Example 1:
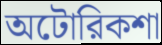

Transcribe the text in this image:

অটোরিকশা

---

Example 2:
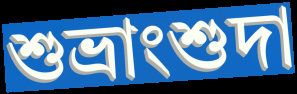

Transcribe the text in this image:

শুভ্রাংশুদা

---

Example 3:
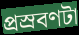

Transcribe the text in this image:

প্রস্রবণটা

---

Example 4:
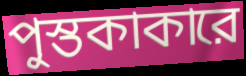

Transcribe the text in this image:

পুস্তকাকারে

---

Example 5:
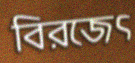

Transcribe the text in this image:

বিরজেৎ